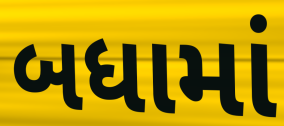
બધામાં